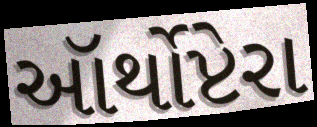
ઑર્થોપ્ટેરા